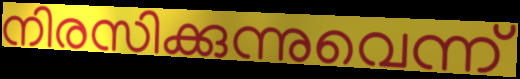
നിരസിക്കുന്നുവെന്ന്